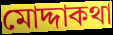
মোদ্দাকথা